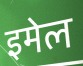
इमेल